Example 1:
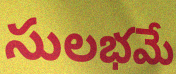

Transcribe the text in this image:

సులభమే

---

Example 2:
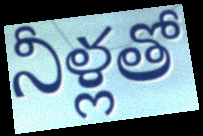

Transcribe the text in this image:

నీళ్లతో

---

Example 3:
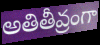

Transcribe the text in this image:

అతితీవ్రంగా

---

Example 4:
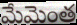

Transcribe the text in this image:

మేమెంత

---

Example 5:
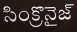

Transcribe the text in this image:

సింక్రొనైజ్